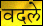
वदले